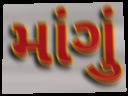
માંગું